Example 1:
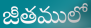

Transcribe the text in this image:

జీతములో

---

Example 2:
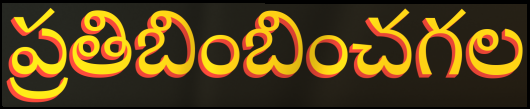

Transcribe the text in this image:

ప్రతిబింబించగల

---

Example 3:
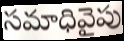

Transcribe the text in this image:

సమాధివైపు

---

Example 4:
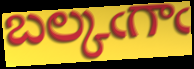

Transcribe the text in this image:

బల్కఁగాఁ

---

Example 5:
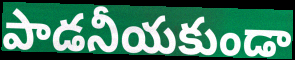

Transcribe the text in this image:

పాడనీయకుండా